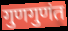
गुणगुणंत